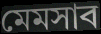
মেমসাব